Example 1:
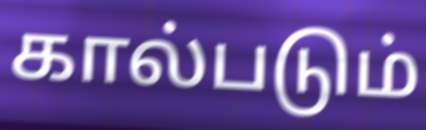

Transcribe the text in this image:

கால்படும்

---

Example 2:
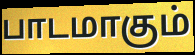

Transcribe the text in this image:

பாடமாகும்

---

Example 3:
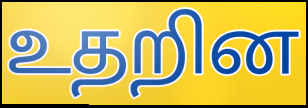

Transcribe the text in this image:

உதறின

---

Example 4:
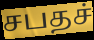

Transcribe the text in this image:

சபதச்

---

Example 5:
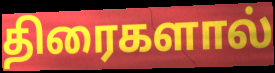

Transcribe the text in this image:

திரைகளால்